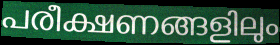
പരീക്ഷണങ്ങളിലും